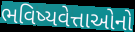
ભવિષ્યવેત્તાઓનો